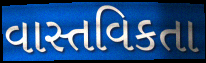
વાસ્તવિકતા